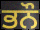
ਭਨੌ